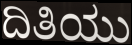
ದಿತಿಯು